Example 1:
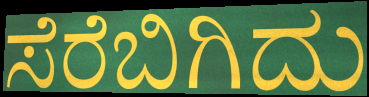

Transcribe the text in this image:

ಸೆರೆಬಿಗಿದು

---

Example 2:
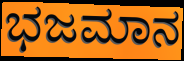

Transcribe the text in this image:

ಭಜಮಾನ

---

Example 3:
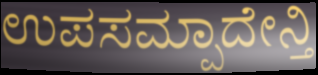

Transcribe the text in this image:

ಉಪಸಮ್ಪಾದೇನ್ತಿ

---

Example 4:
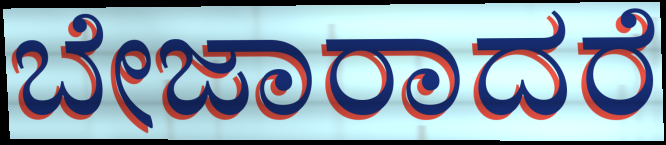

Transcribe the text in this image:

ಬೇಜಾರಾದರೆ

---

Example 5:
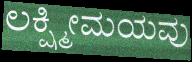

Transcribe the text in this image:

ಲಕ್ಷ್ಮೀಮಯವು